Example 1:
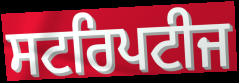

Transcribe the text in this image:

ਸਟਰਿਪਟੀਜ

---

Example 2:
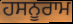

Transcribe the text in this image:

ਹਸਨੂਰਾਮ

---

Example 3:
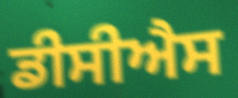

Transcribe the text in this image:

ਡੀਸੀਐਸ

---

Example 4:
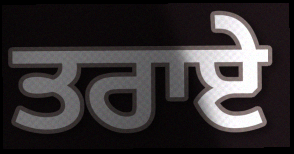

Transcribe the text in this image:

ਤਰਾਏ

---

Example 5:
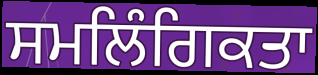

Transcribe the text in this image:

ਸਮਲਿੰਗਿਕਤਾ